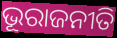
ଭୂରାଜନୀତି